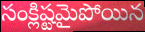
సంక్లిష్టమైపోయిన